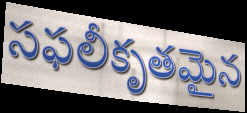
సఫలీకృతమైన